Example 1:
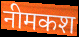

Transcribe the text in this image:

नीमकश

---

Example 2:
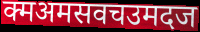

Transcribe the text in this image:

क्मअमसवचउमदज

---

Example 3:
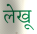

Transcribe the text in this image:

लेखू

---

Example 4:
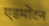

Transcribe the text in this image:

एडमोंटन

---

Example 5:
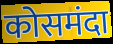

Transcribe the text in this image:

कोसमंदा